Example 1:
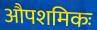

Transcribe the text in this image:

औपशमिकः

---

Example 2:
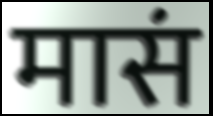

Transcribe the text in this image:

मासं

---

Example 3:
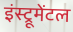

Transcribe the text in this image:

इंस्ट्रूमेंटल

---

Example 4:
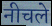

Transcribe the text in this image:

नीचले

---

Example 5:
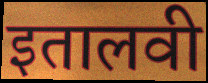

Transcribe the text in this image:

इतालवी